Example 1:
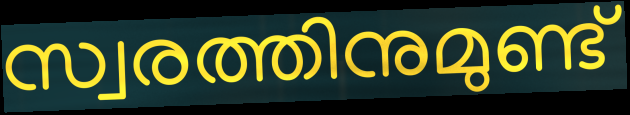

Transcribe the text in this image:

സ്വരത്തിനുമുണ്ട്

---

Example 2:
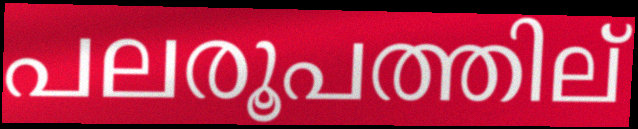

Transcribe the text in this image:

പലരൂപത്തില്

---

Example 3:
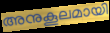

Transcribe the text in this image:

അനുകൂലമായി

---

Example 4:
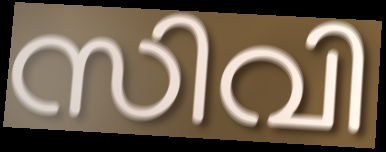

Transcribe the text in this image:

സിവി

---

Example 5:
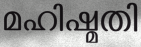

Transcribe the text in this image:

മഹിഷ്മതി